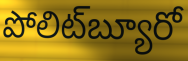
పోలిట్‌బ్యూరో